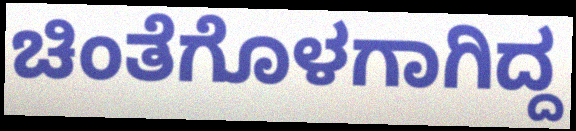
ಚಿಂತೆಗೊಳಗಾಗಿದ್ದ